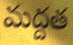
మద్దత